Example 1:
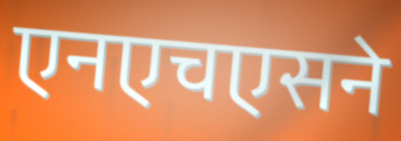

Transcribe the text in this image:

एनएचएसने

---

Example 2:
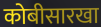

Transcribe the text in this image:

कोबीसारखा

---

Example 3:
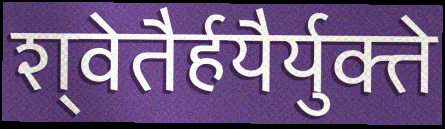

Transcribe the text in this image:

श्वेतैर्हयैर्युक्ते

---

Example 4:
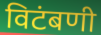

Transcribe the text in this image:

विटंबणी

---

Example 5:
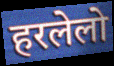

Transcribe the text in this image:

हरलेलो